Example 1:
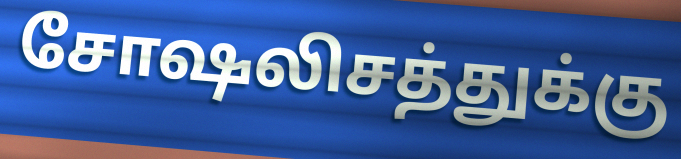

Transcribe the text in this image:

சோஷலிசத்துக்கு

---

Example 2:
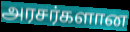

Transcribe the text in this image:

அரசர்களான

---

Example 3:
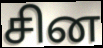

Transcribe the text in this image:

சின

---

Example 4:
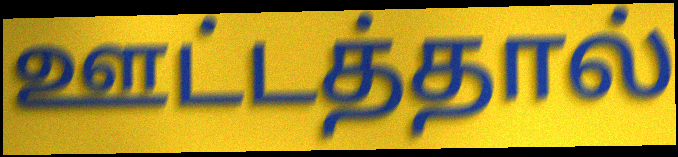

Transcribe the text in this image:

ஊட்டத்தால்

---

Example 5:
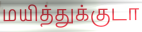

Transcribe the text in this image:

மயித்துக்குடா